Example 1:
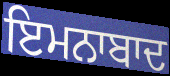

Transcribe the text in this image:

ਇਮਨਾਬਾਦ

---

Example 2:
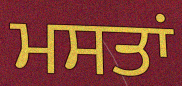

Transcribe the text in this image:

ਮਸਤਾਂ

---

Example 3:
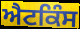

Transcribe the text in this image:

ਐਟਕਿੰਸ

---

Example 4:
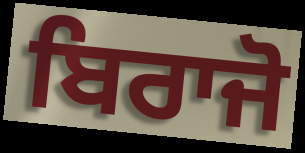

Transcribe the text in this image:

ਬਿਰਾਜੋ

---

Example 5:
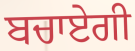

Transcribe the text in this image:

ਬਚਾਏਗੀ